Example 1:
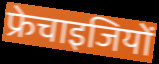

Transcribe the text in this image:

फ्रेचाइजियों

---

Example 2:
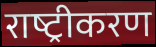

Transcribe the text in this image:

राष्ट्रीकरण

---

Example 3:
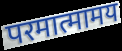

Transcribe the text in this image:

परमात्मामय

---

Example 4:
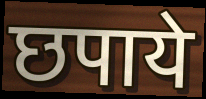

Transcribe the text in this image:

छपाये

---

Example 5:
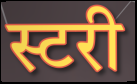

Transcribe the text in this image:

स्टरी